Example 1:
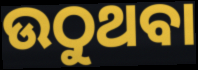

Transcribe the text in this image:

ଉଠୁଥବା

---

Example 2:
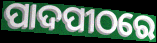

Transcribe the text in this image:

ପାଦପୀଠରେ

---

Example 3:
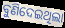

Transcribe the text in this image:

ବୁଣିଦେଇଥିଲା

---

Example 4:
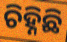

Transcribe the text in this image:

ଚିହ୍ନିଛି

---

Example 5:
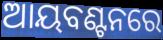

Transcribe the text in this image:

ଆୟବଣ୍ଟନରେ